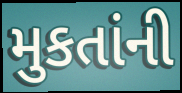
મુકતાંની